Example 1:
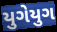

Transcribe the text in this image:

યુગેયુગ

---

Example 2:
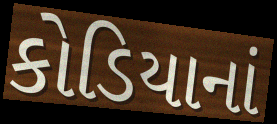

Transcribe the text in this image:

કોડિયાનાં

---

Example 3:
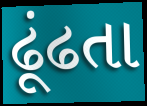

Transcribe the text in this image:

ઢૂંઢતા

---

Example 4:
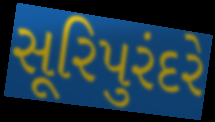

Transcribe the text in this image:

સૂરિપુરંદરે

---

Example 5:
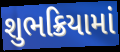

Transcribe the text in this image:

શુભક્રિયામાં